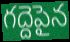
గద్దెపైన